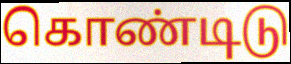
கொண்டிடு